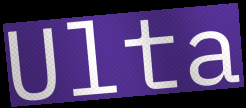
Ulta